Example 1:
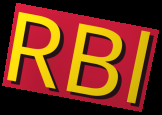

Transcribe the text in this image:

RBl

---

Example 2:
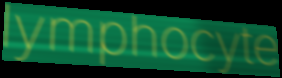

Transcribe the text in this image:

lymphocyte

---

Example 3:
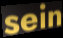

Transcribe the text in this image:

sein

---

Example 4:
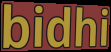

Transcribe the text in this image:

bidhi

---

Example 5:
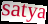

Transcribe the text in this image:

satya